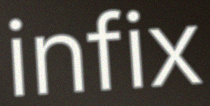
infix